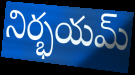
నిర్భయమ్